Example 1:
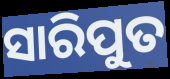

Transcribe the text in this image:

ସାରିପୁତ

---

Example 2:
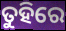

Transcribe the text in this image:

ତୁହିରେ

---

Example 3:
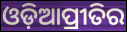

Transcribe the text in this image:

ଓଡ଼ିଆପ୍ରୀତିର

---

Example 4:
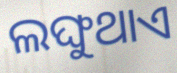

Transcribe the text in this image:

ଲଙ୍ଘୁଥାଏ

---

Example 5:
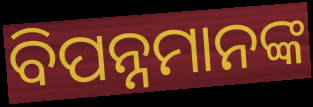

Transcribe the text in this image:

ବିପନ୍ନମାନଙ୍କ